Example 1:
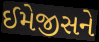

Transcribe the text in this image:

ઈમેજીસને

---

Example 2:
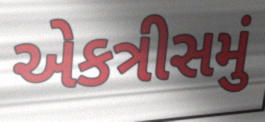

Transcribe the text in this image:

એકત્રીસમું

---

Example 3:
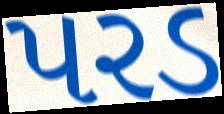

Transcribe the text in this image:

પરડ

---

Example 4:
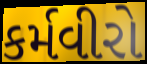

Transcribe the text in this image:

કર્મવીરો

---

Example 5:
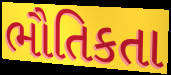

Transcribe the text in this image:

ભૌતિકતા